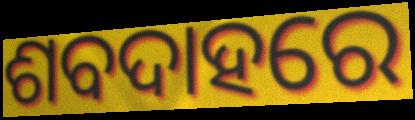
ଶବଦାହରେ